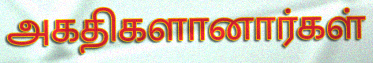
அகதிகளானார்கள்